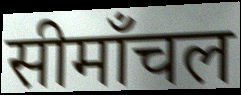
सीमाँचल